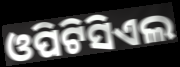
ଓପିଟିସିଏଲ